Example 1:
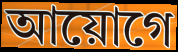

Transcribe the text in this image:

আয়োগে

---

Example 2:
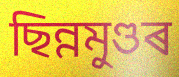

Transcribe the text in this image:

ছিন্নমুণ্ডৰ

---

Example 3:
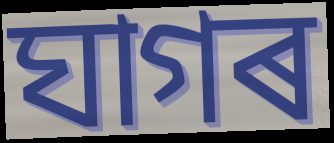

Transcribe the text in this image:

ঘাগৰ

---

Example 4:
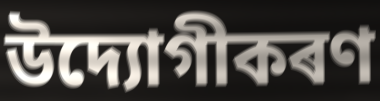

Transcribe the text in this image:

উদ্যোগীকৰণ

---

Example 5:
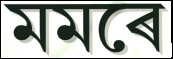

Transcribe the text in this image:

মমৰে